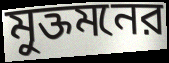
মুক্তমনের